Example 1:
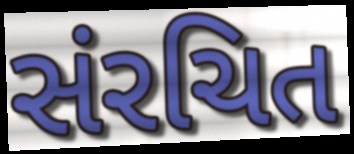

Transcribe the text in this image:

સંરચિત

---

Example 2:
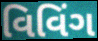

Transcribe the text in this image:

વિવિંગ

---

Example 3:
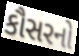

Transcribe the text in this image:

કૌસરનો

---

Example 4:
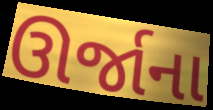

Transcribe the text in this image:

ઊર્જાના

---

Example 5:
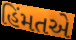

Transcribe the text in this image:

હિંમતએ